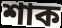
শাক